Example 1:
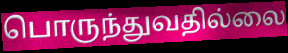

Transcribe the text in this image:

பொருந்துவதில்லை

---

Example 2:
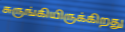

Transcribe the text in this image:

சுருங்கியிருக்கிறது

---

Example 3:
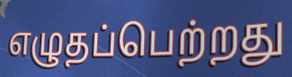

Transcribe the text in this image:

எழுதப்பெற்றது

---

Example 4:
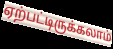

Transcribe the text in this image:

ஏற்பட்டிருக்கலாம்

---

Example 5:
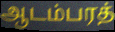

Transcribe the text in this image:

ஆடம்பரத்